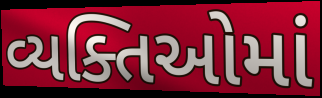
વ્યક્તિઓમાં